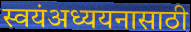
स्वयंअध्ययनासाठी